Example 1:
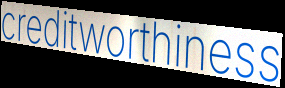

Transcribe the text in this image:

creditworthiness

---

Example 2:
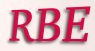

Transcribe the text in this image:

RBE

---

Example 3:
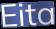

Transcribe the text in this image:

Eita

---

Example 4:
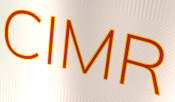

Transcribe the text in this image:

CIMR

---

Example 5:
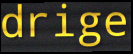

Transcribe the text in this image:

drige